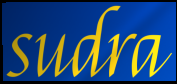
sudra